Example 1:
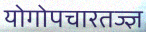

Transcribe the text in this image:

योगोपचारतज्ज्ञ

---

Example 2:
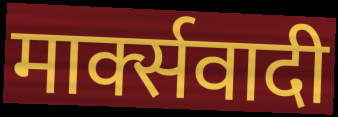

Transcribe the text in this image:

मार्क्‍सवादी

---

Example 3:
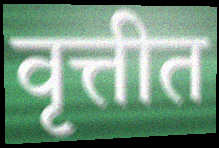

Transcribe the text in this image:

वृत्तीत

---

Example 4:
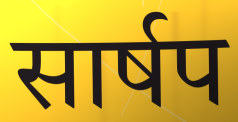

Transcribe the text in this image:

सार्षप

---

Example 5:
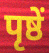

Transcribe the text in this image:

पृष्ठें